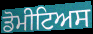
ਡੋਮੀਟਿਅਸ